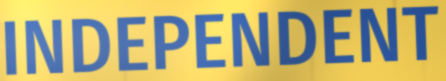
INDEPENDENT